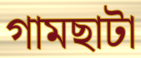
গামছাটা